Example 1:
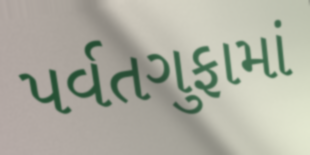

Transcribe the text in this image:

પર્વતગુફામાં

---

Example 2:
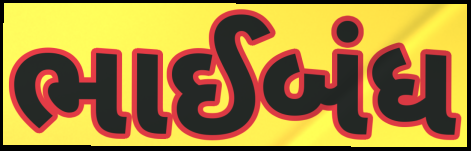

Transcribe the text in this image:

ભાઈબંધ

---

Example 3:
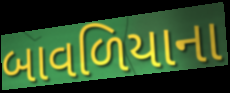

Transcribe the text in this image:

બાવળિયાના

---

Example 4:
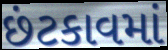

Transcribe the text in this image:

છંટકાવમાં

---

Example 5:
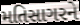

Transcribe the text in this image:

મતિસાગરને